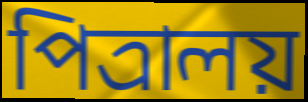
পিত্রালয়